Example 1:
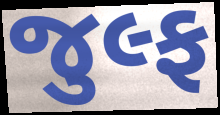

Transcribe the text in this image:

જુલ્ફ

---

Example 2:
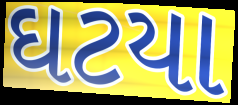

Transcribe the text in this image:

ઘટયા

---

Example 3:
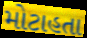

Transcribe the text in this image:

મોટાહતા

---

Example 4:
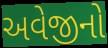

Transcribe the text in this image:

અવેજીનો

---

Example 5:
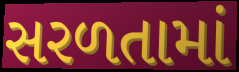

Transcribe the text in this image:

સરળતામાં